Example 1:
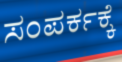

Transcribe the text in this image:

ಸಂಪರ್ಕಕ್ಕೆ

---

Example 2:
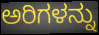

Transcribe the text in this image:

ಅರಿಗಳನ್ನು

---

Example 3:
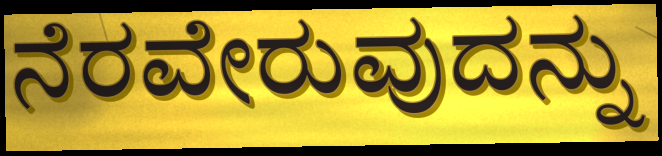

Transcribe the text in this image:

ನೆರವೇರುವುದನ್ನು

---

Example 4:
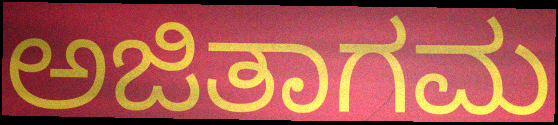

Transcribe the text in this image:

ಅಜಿತಾಗಮ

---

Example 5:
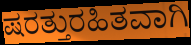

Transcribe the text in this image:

ಷರತ್ತುರಹಿತವಾಗಿ